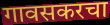
गावसकरचा